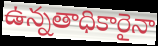
ఉన్నతాధికారైనా